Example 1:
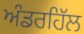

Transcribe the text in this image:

ਅੰਡਰਹਿੱਲ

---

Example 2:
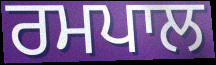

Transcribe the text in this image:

ਰਮਪਾਲ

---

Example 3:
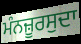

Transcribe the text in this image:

ਮੰਨਜ਼ੂਰਸੁਦਾ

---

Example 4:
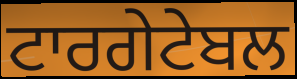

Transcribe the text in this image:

ਟਾਰਗੇਟੇਬਲ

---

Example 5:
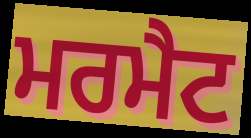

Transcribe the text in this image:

ਮਰਮੈਟ